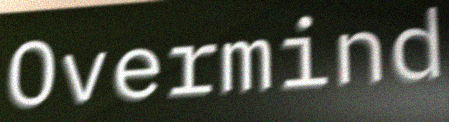
Overmind